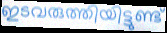
ഇടവരുത്തിയിട്ടുണ്ട്